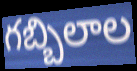
గబ్బిలాల